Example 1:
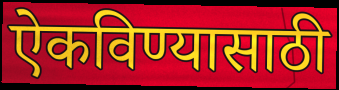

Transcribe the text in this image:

ऐकविण्यासाठी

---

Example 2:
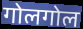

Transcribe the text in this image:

गोलगोल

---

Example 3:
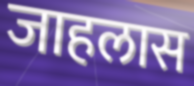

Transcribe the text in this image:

जाहलास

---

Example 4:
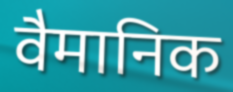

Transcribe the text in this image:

वैमानिक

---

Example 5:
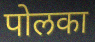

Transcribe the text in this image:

पोलका